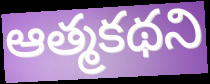
ఆత్మకథని